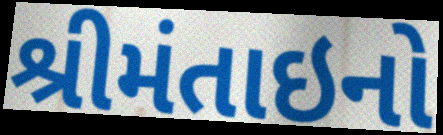
શ્રીમંતાઇનો